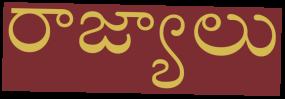
రాజ్యాలు